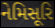
નેમિસૂરિ